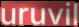
uruvil